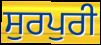
ਸੁਰਪੁਰੀ